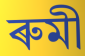
ৰুমী